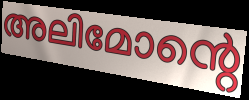
അലിമോന്റെ